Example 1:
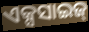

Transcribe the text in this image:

ଏକ୍ସସାଇଜ୍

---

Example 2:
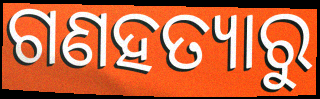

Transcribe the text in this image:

ଗଣହତ୍ୟାରୁ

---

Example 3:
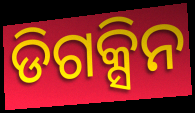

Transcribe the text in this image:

ଡିଗକ୍ସିନ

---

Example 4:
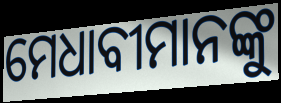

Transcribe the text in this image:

ମେଧାବୀମାନଙ୍କୁ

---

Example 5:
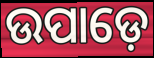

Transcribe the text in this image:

ଉପାଡ଼େ